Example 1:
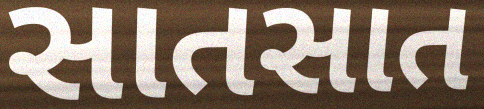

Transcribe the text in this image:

સાતસાત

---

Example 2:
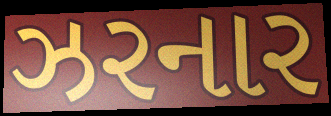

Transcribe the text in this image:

ઝરનાર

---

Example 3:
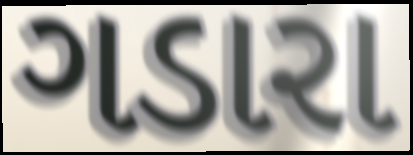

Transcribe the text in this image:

ગડારા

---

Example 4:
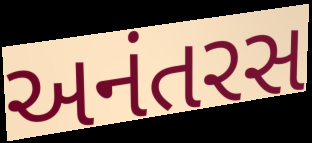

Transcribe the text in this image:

અનંતરસ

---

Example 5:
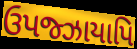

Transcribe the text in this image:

ઉપજ્ઝાયાપિ